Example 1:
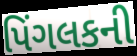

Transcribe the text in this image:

પિંગલકની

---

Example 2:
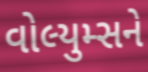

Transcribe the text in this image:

વોલ્યુમ્સને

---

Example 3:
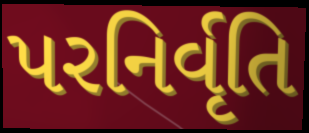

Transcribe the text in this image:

પરનિર્વૃતિ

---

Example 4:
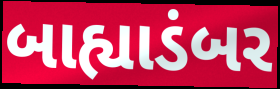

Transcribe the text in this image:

બાહ્યાડંબર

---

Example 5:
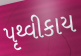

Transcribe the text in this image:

પૃથ્વીકાય